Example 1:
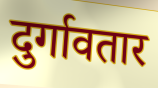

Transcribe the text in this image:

दुर्गावतार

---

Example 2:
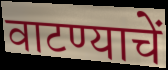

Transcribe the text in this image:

वाटण्याचें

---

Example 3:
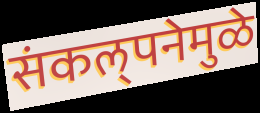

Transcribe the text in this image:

संकल्पनेमुळे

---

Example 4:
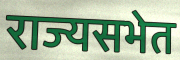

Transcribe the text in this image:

राज्यसभेत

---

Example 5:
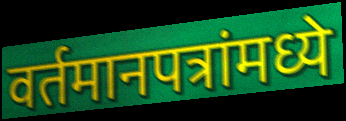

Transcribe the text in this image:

वर्तमानपत्रांमध्ये